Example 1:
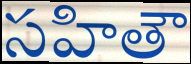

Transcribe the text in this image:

సహితౌ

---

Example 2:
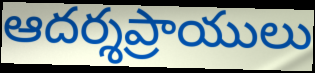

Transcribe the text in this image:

ఆదర్శప్రాయులు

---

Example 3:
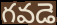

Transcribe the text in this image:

గవడె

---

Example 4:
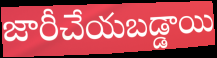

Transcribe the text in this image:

జారీచేయబడ్డాయి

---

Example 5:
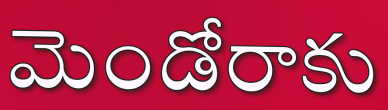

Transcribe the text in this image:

మెండోరాకు